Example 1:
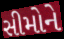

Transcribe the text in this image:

સીમોને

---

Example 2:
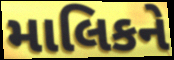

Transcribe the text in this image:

માલિકને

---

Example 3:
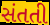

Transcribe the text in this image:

સંતતી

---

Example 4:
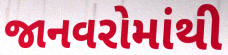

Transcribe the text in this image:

જાનવરોમાંથી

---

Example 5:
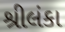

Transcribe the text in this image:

શ્રીલંકા